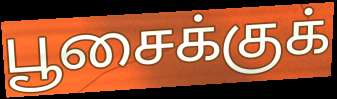
பூசைக்குக்